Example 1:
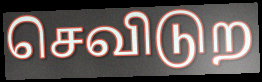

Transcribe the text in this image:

செவிடுற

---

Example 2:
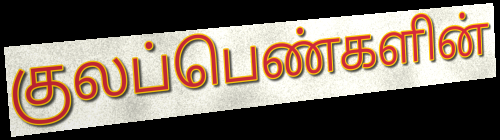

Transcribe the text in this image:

குலப்பெண்களின்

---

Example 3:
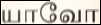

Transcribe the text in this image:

யாவோ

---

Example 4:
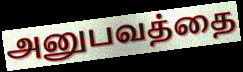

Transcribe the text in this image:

அனுபவத்தை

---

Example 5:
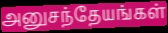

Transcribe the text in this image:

அனுசந்தேயங்கள்